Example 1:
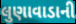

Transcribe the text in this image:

લુણાવાડાની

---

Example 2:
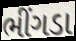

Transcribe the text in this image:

ભીંગડા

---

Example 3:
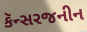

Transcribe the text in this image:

કૅન્સરજનીન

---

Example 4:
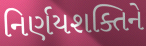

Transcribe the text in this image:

નિર્ણયશક્તિને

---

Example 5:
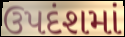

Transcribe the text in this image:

ઉપદંશમાં